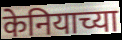
केनियाच्या